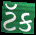
ટૅક